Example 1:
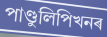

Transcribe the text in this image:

পাণ্ডুলিপিখনৰ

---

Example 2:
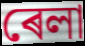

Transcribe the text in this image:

ৰেলা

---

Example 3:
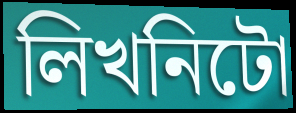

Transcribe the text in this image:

লিখনিটো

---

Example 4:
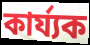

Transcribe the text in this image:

কাৰ্য্যক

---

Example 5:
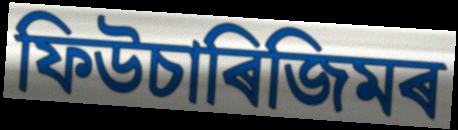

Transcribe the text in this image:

ফিউচাৰিজিমৰ